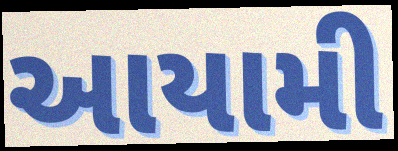
આયામી